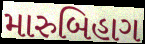
મારુબિહાગ